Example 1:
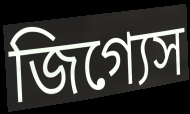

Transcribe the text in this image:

জিগ্যেস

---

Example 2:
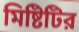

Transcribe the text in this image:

মিষ্টিটির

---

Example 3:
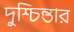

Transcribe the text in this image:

দুশ্চিন্তার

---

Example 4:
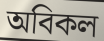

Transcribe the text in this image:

অবিকল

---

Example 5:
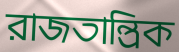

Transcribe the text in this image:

রাজতান্ত্রিক